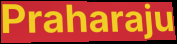
Praharaju